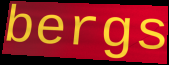
bergs